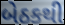
બેઠકથી